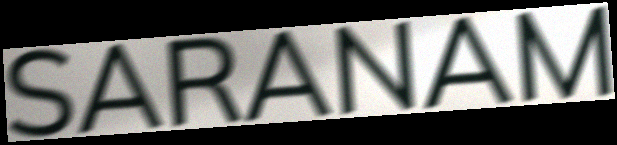
SARANAM